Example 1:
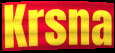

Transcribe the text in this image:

Krsna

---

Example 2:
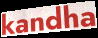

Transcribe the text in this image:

kandha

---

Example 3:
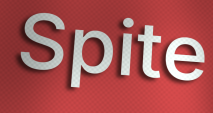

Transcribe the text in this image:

Spite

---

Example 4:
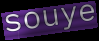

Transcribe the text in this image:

souye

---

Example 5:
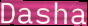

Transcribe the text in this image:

Dasha